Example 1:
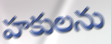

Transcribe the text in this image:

హకులను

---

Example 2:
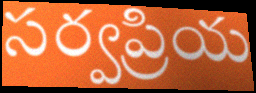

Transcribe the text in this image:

సర్వప్రియ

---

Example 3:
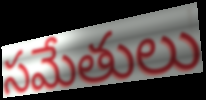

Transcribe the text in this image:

సమేతులు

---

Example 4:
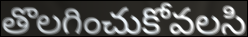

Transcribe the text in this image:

తొలగించుకోవలసి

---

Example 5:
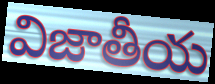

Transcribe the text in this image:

విజాతీయ